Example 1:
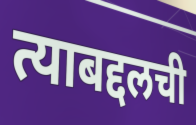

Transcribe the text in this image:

त्याबद्दलची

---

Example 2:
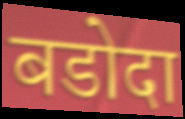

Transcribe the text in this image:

बडोदा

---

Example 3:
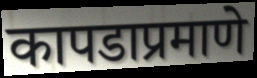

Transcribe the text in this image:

कापडाप्रमाणे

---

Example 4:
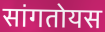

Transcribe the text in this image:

सांगतोयस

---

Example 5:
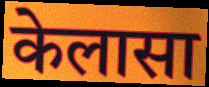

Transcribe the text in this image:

केलासा